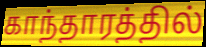
காந்தாரத்தில்